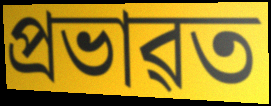
প্ৰভাৱত